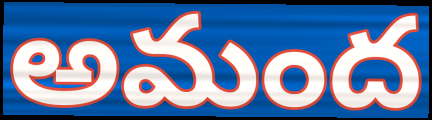
అమంద